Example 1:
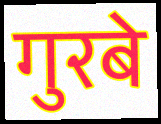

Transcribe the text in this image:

गुरबे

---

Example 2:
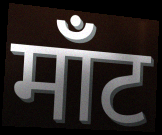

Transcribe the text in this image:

माँट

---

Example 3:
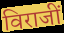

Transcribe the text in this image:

विराजीं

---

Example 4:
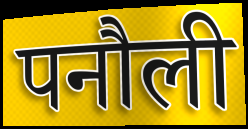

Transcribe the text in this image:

पनौली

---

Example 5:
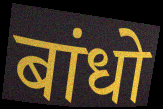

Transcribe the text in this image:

बांधो